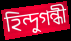
হিন্দুগন্ধী